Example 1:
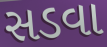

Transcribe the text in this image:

સડવા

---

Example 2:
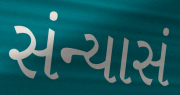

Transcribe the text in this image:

સંન્યાસં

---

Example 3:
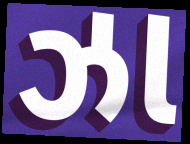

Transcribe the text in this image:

ઝા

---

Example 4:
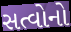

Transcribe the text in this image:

સત્વોનો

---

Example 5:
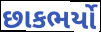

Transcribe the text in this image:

છાકભર્યો